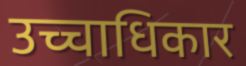
उच्चाधिकार